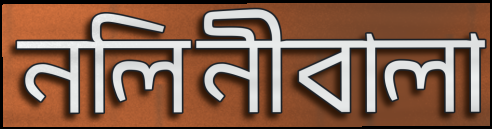
নলিনীবালা